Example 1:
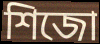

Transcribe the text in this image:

শিজো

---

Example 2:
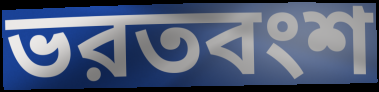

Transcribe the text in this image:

ভরতবংশ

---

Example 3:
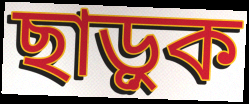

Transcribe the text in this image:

ছাড়ুক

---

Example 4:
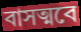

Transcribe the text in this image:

বাসত্মবে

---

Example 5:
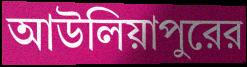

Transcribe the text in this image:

আউলিয়াপুরের